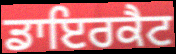
ਡਾਇਰਕੈਟ